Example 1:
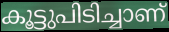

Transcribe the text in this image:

കൂട്ടുപിടിച്ചാണ്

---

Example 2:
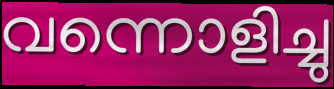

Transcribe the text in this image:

വന്നൊളിച്ചു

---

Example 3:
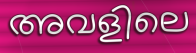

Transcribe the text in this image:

അവളിലെ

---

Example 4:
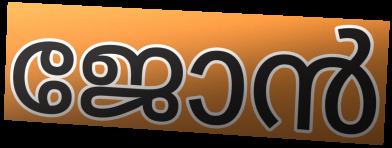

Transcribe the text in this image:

ജോൻ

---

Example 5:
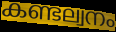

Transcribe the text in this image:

കണ്ടല്വനം